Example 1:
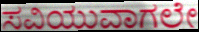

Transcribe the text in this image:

ಸವಿಯುವಾಗಲೇ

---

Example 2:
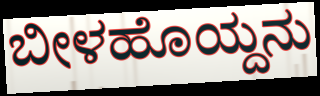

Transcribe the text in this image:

ಬೀಳಹೊಯ್ದನು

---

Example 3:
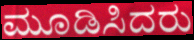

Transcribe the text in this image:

ಮೂಡಿಸಿದರು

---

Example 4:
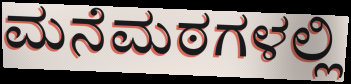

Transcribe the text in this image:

ಮನೆಮಠಗಳಲ್ಲಿ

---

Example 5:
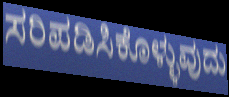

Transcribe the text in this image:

ಸರಿಪಡಿಸಿಕೊಳ್ಳುವುದು